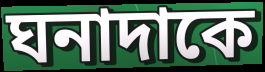
ঘনাদাকে